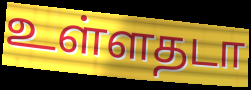
உள்ளதடா